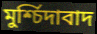
মুৰ্শ্চিদাবাদ